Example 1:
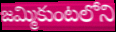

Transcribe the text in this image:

జమ్మికుంటలోని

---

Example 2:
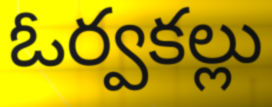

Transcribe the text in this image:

ఓర్వకల్లు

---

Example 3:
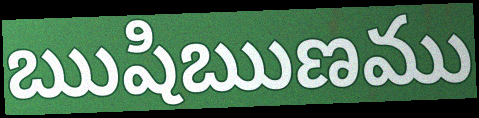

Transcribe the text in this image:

ఋషిఋణము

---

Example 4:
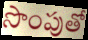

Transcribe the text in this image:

సొంపుతో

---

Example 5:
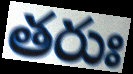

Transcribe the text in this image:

తరుః